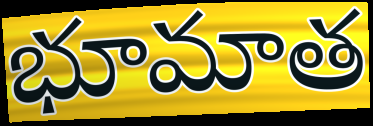
భూమాత